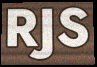
RJS